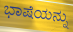
ಭಾಷೆಯನ್ನು